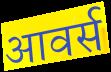
आवर्स